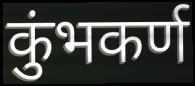
कुंभकर्ण